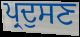
ਪ੍ਰਦੁਸਣ